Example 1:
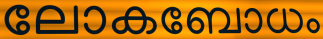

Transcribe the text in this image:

ലോകബോധം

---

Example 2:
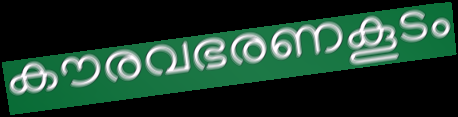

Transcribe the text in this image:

കൗരവഭരണകൂടം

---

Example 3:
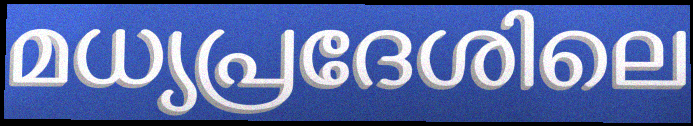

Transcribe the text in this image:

മധ്യപ്രദേശിലെ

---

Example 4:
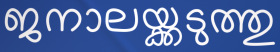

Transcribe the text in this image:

ജനാലയ്ക്കടുത്തു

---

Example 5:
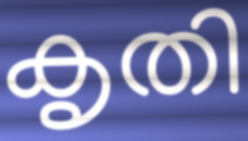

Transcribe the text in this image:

കൃതി